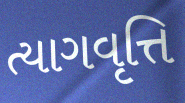
ત્યાગવૃત્તિ